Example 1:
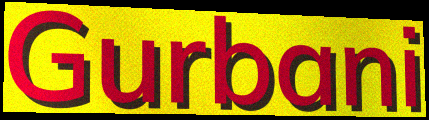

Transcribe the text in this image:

Gurbani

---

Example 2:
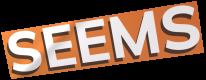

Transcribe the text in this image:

SEEMS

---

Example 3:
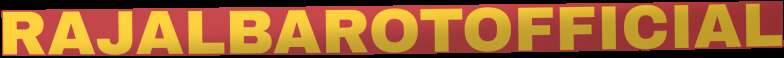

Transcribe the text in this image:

RAJALBAROTOFFICIAL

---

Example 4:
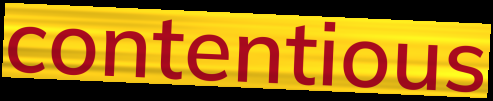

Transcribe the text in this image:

contentious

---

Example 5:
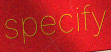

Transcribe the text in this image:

specify